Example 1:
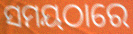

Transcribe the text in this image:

ସମୟଠାରେ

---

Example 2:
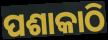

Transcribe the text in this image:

ପଶାକାଠି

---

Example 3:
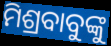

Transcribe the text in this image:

ମିଶ୍ରବାବୁଙ୍କୁ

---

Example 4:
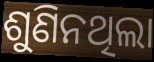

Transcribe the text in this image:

ଶୁଣିନଥିଲା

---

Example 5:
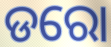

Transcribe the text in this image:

ଡରୋ